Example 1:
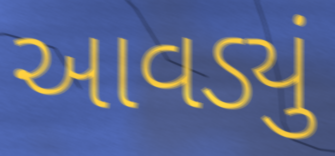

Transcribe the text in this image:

આવડ્યું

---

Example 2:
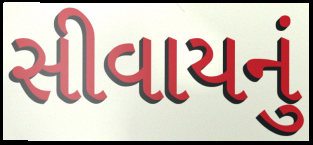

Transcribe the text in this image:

સીવાયનું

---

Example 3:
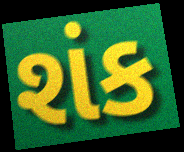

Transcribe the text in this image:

શંક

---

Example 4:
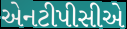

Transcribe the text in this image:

એનટીપીસીએ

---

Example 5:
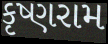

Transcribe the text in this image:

કૃષ્ણરામ